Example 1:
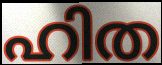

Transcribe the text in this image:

ഹിത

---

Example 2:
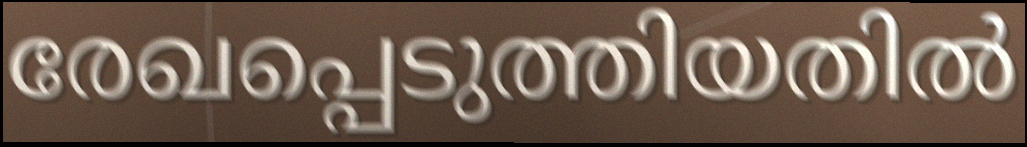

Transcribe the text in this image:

രേഖപ്പെടുത്തിയതിൽ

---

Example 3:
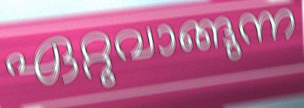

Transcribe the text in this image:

ഏറ്റുവാങ്ങുന്ന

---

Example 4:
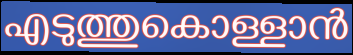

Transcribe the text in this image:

എടുത്തുകൊള്ളാൻ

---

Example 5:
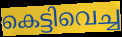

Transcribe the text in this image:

കെട്ടിവെച്ച